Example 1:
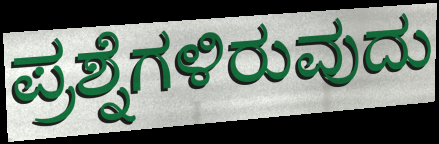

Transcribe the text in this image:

ಪ್ರಶ್ನೆಗಳಿರುವುದು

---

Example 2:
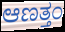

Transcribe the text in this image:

ಆಣತ್ತಂ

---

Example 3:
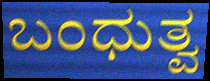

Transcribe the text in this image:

ಬಂಧುತ್ವ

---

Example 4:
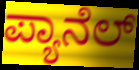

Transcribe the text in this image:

ಪ್ಯಾನೆಲ್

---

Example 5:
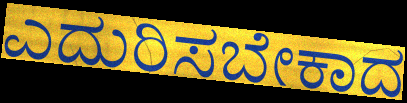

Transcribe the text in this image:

ಎದುರಿಸಬೇಕಾದ